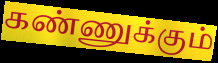
கண்ணுக்கும்